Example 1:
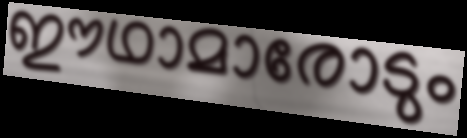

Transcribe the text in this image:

ഈഥാമാരോടും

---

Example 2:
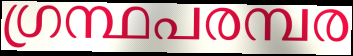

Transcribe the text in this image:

ഗ്രന്ഥപരമ്പര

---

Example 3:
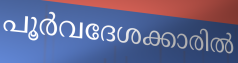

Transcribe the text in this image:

പൂർവദേശക്കാരിൽ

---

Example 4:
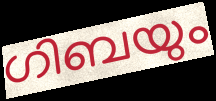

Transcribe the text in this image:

ഗിബയും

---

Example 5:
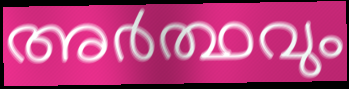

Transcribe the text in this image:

അർത്ഥവും